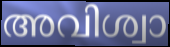
അവിശ്വാ